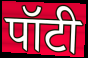
पॉटी